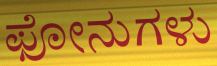
ಫೋನುಗಳು